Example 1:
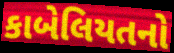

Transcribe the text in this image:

કાબેલિયતનો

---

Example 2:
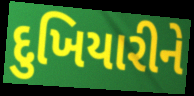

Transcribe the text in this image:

દુખિયારીને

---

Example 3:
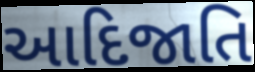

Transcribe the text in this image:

આદિજાતિ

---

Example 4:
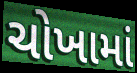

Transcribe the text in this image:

ચોખામાં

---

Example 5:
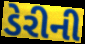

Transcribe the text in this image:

ડેરીની